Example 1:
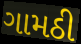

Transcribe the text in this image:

ગામઠી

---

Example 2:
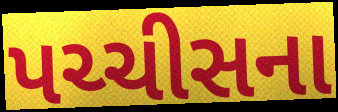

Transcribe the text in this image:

પચ્ચીસના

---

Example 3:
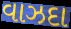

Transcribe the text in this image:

વાઝદા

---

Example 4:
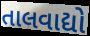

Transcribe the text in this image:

તાલવાદ્યો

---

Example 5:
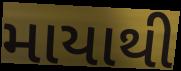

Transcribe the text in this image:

માયાથી